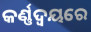
କର୍ଣ୍ଣଦ୍ୱୟରେ